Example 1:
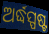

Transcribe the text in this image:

ଅର୍ଦ୍ଧସ୍ପଷ୍ଟ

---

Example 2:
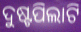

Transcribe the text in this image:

ଦୁଷ୍ଟପିଲାଟି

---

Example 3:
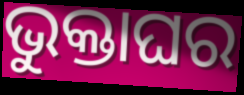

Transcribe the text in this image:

ଭୁକ୍ତାଘର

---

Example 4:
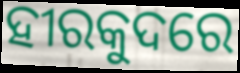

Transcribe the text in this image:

ହୀରକୁଦରେ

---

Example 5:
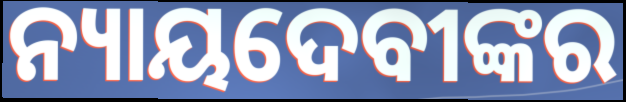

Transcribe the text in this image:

ନ୍ୟାୟଦେବୀଙ୍କର